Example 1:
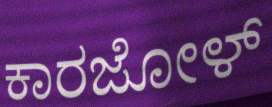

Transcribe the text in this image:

ಕಾರಜೋಳ್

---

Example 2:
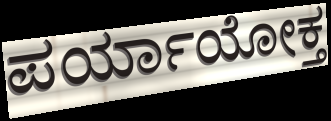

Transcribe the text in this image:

ಪರ್ಯಾಯೋಕ್ತ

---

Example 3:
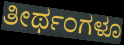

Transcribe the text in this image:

ತೀರ್ಥಂಗಳೂ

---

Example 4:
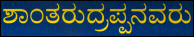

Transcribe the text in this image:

ಶಾಂತರುದ್ರಪ್ಪನವರು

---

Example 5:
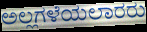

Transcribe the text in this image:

ಅಲ್ಲಗಳೆಯಲಾರರು